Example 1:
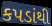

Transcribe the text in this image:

કપડાંથી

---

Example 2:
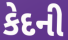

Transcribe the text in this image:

કેદની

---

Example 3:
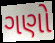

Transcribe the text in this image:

ગણો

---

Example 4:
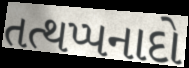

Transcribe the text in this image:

તત્થપ્પનાદો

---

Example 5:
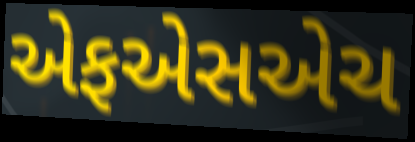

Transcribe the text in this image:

એફએસએચ